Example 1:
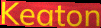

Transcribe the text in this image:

Keaton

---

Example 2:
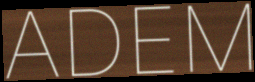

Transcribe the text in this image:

ADEM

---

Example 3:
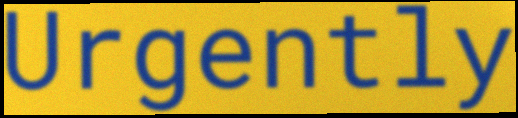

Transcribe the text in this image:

Urgently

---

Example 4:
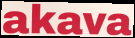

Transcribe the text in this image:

akava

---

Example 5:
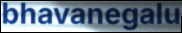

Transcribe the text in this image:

bhavanegalu